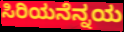
ಸಿರಿಯನೆನ್ನಯ